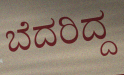
ಬೆದರಿದ್ದ